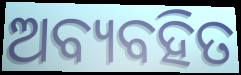
ଅବ୍ୟବହିତ